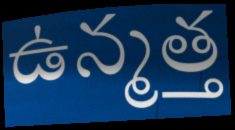
ఉన్మత్త